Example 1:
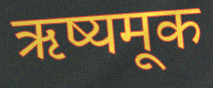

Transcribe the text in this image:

ऋष्यमूक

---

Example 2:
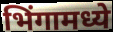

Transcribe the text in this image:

भिंगामध्ये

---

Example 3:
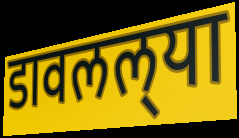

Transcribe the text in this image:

डावलल्या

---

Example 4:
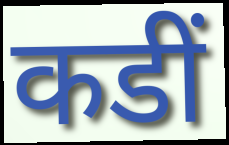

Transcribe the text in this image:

कडीं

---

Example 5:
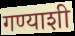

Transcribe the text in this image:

गण्याशी